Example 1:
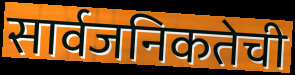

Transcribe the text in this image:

सार्वजनिकतेची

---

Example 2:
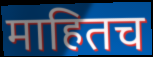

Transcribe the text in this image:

माहितच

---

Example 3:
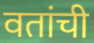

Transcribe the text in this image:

वतांची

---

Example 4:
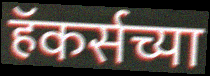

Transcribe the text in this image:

हॅकर्सच्या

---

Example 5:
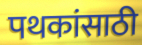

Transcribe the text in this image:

पथकांसाठी